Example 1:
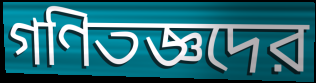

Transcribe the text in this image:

গণিতজ্ঞদের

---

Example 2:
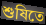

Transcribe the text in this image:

শুষিতে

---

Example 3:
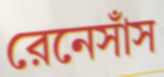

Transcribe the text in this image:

রেনেসাঁস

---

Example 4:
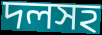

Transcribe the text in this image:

দলসহ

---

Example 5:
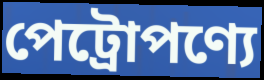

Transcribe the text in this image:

পেট্রোপণ্যে